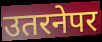
उतरनेपर